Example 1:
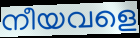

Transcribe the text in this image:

നീയവളെ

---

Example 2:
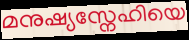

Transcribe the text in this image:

മനുഷ്യസ്നേഹിയെ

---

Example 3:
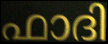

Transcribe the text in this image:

ഫാദി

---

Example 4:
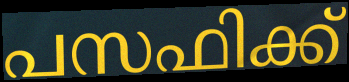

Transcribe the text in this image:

പസഫിക്ക്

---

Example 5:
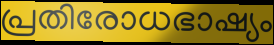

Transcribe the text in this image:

പ്രതിരോധഭാഷ്യം